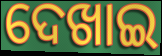
ଦେଖାଇ